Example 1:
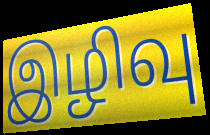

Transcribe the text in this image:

இழிவு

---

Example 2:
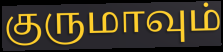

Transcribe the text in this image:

குருமாவும்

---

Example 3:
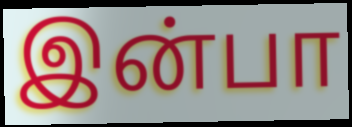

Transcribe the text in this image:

இன்பா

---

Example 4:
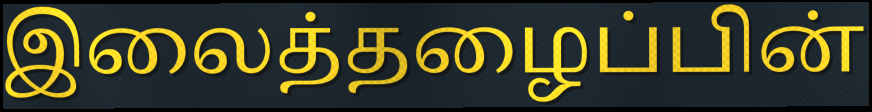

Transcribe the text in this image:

இலைத்தழைப்பின்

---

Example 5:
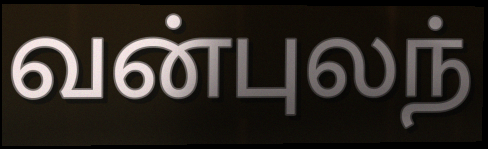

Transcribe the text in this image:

வன்புலந்